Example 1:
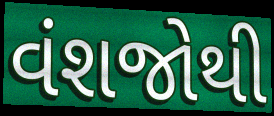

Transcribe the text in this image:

વંશજોથી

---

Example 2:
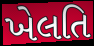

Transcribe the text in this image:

ખેલતિ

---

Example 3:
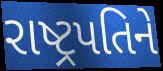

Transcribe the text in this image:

રાષ્ટ્રપતિને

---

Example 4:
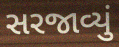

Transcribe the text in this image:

સરજાવ્યું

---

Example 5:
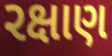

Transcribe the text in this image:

રક્ષાણ